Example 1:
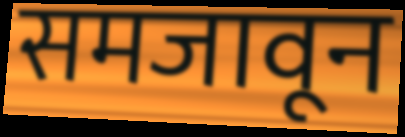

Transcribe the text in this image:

समजावून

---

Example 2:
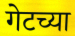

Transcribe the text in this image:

गेटच्या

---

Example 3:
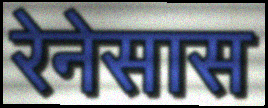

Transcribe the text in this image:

रेनेसास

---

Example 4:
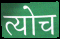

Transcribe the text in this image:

त्योच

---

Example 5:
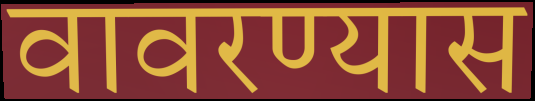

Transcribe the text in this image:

वावरण्यास